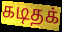
கடிதக்